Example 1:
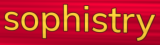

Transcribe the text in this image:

sophistry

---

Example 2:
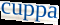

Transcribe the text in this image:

cuppa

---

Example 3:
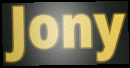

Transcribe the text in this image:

Jony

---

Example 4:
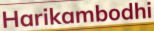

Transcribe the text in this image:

Harikambodhi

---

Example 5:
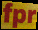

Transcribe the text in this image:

fpr